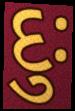
દુઃ